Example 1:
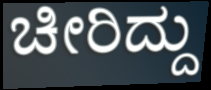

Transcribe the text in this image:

ಚೀರಿದ್ದು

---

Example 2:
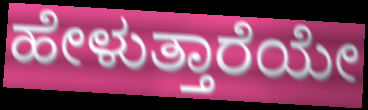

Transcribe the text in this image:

ಹೇಳುತ್ತಾರೆಯೇ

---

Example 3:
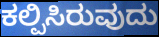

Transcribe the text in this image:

ಕಲ್ಪಿಸಿರುವುದು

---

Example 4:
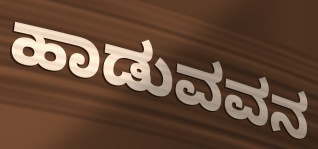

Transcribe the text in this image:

ಹಾಡುವವನ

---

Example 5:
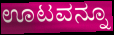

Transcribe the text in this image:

ಊಟವನ್ನೂ